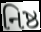
નિષ્ઠ